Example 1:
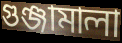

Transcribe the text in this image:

গুঞ্জামালা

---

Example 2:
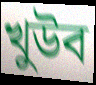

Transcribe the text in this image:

খুউব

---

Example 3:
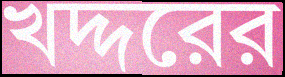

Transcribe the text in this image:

খদ্দরের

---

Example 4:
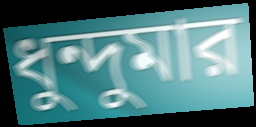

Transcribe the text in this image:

ধুন্দুমার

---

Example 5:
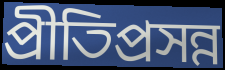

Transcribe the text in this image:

প্রীতিপ্রসন্ন